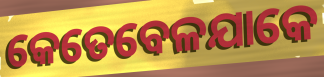
କେତେବେଳଯାକେ